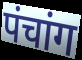
पंचांग